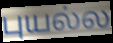
புயல்ல